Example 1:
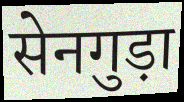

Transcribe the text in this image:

सेनगुड़ा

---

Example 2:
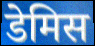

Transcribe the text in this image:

डेमिस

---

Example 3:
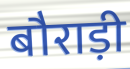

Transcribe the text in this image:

बौराड़ी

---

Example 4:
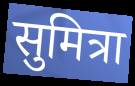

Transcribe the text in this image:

सुमित्रा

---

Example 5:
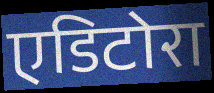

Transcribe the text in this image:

एडिटोरा